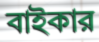
বাইকার